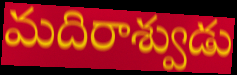
మదిరాశ్వుడు